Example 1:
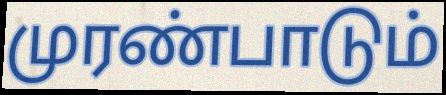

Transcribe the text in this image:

முரண்பாடும்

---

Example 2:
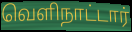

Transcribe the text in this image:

வெளிநாட்டார்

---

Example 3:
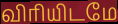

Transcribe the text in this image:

விரியிடமே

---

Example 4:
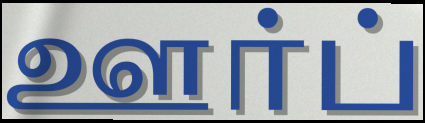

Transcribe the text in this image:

ஊர்ப்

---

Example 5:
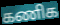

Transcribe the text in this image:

கணிக